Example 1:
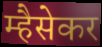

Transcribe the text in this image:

म्हैसेकर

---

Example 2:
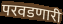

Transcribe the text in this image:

परवडणारी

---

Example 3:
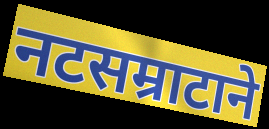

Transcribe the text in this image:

नटसम्राटाने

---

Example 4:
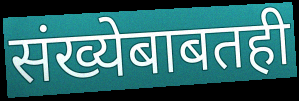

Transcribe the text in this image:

संख्येबाबतही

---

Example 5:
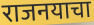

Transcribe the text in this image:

राजनयाचा